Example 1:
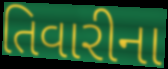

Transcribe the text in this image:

તિવારીના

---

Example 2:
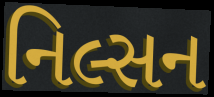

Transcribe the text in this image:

નિલ્સન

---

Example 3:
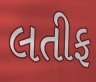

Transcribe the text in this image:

લતીફ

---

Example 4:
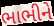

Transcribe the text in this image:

ભાભીને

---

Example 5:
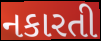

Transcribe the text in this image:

નકારતી